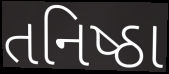
તનિષ્ઠા